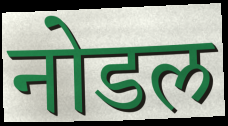
नोडल